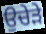
ਉਚੇੜੇ